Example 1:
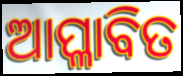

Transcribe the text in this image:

ଆପ୍ଳାବିତ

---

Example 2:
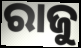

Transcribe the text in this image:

ରାଜୁ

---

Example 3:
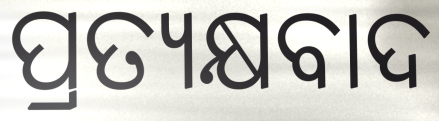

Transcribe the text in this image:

ପ୍ରତ୍ୟକ୍ଷବାଦ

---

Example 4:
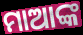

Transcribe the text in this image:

ମାଆଙ୍କ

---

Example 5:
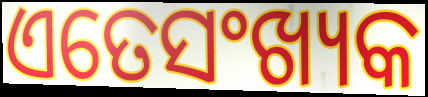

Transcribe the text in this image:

ଏତେସଂଖ୍ୟକ